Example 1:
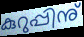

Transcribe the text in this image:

കുറുപ്പിനു്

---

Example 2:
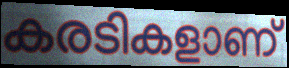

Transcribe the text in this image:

കരടികളാണ്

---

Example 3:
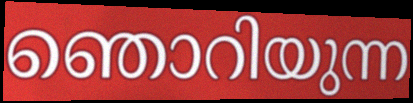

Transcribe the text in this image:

ഞൊറിയുന്ന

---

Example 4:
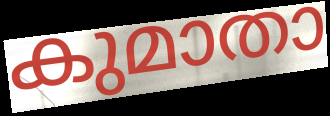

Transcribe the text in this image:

കുമാതാ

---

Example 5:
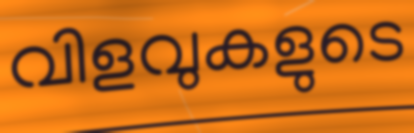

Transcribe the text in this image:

വിളവുകളുടെ